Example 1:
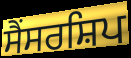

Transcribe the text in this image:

ਸੈਂਸਰਸ਼ਿਪ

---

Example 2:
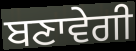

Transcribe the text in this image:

ਬਣਾਵੇਗੀ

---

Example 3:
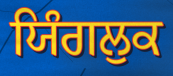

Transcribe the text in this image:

ਯਿੰਗਲੁਕ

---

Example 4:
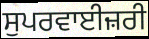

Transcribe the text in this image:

ਸੁਪਰਵਾਈਜ਼ਰੀ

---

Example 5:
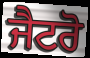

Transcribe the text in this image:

ਜੈਟਰੋ